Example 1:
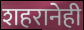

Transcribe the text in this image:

शहरानेही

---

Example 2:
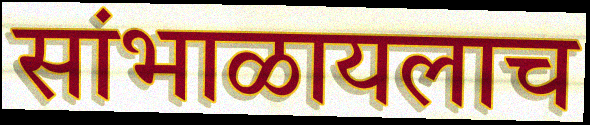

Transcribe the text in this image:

सांभाळायलाच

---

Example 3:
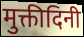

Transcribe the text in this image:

मुक्तीदिनी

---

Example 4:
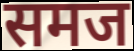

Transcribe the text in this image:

समज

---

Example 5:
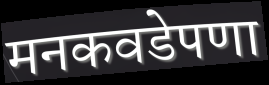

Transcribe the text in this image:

मनकवडेपणा